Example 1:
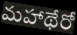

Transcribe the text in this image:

మహాథేరో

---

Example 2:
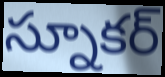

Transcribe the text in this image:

స్నూకర్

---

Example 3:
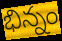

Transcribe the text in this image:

భిన్నం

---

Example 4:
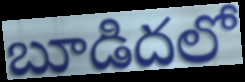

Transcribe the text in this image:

బూడిదలో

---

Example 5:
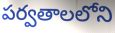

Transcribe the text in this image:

పర్వతాలలోని